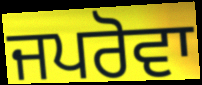
ਜਪਰੋਵਾ